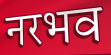
नरभव